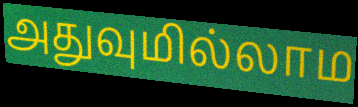
அதுவுமில்லாம